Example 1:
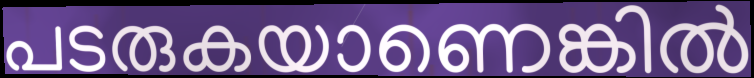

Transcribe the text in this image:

പടരുകയാണെങ്കിൽ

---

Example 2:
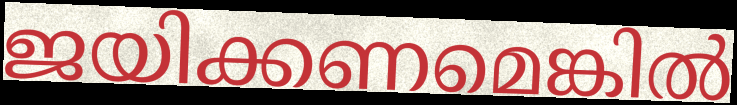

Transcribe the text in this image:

ജയിക്കണമെങ്കിൽ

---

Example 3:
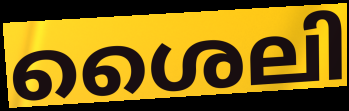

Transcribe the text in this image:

ശൈലി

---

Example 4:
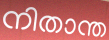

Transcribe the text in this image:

നിതാന്ത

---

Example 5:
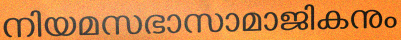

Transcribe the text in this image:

നിയമസഭാസാമാജികനും